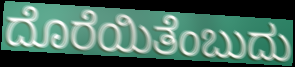
ದೊರೆಯಿತೆಂಬುದು